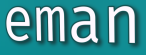
eman